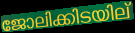
ജോലിക്കിടയില്